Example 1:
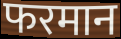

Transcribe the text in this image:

फरमान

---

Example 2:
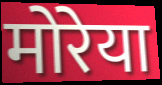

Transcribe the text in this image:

मोरेया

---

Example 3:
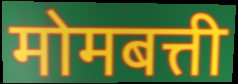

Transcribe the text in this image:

मोमबत्ती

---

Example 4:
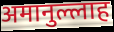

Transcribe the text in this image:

अमानुल्लाह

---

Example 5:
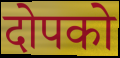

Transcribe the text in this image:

दोपको